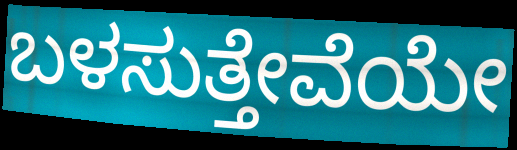
ಬಳಸುತ್ತೇವೆಯೇ